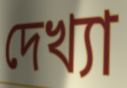
দেখ্যা